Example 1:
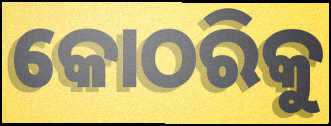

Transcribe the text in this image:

କୋଠରିକୁ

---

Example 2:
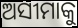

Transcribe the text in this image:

ଅସୀମାକୁ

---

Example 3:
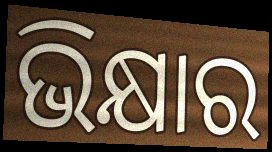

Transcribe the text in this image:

ଭିକ୍ଷାର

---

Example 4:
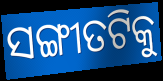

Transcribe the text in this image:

ସଙ୍ଗୀତଟିକୁ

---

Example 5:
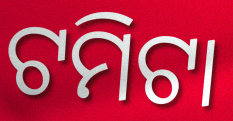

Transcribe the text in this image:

ଟମିଟା